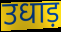
उधाड़